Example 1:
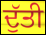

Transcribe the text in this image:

ਦੁੱਤੀ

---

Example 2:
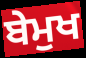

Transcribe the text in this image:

ਬੇਮੁਖ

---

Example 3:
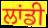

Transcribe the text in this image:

ਲਾਂਡੀ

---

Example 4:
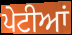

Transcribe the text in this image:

ਪੇਟੀਆਂ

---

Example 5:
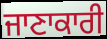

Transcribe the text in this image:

ਜਾਣਾਕਾਰੀ